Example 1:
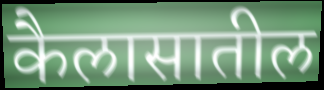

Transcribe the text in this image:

कैलासातील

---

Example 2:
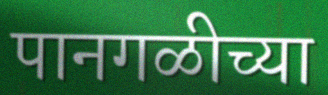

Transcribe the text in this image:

पानगळीच्या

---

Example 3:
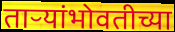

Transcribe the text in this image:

ताऱ्यांभोवतीच्या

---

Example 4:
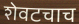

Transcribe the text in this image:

शेवटचाच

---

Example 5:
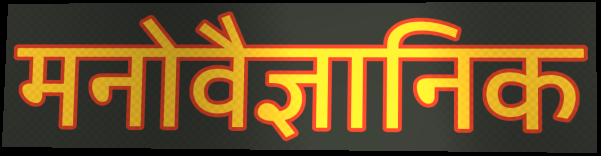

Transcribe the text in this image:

मनोवैज्ञानिक